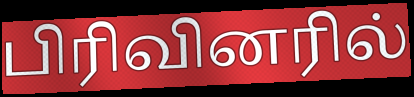
பிரிவினரில்